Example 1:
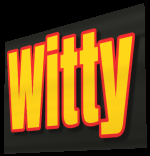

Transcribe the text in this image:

Witty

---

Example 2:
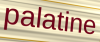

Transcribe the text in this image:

palatine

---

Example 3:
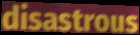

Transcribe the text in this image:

disastrous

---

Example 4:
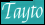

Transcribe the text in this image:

Tayto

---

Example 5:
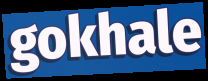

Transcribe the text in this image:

gokhale